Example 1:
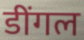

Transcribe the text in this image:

डींगल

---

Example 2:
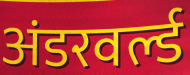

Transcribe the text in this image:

अंडरवर्ल्‍ड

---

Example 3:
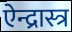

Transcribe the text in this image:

ऐन्द्रास्त्र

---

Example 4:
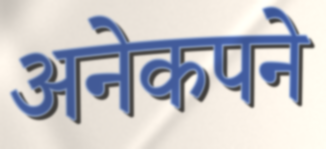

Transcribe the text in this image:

अनेकपने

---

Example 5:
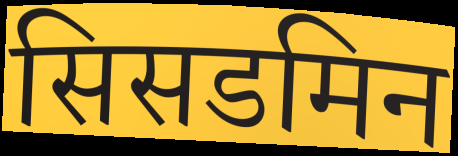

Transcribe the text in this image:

सिसडमिन